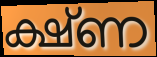
ക്ഷ്ണ